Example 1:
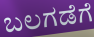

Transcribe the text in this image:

ಬಲಗಡೆಗೆ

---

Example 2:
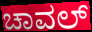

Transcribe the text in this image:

ಚಾವಲ್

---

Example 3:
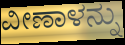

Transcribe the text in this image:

ವೀಣಾಳನ್ನು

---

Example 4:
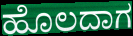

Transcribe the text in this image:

ಹೊಲದಾಗ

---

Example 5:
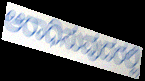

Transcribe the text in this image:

ಆರಾಧಿಸುವುದರಲ್ಲಿ